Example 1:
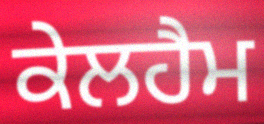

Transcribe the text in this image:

ਕੇਲਹੈਮ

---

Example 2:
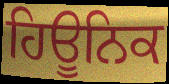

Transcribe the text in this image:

ਹਿਊਨਿਕ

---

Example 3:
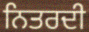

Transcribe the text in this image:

ਨਿਤਰਦੀ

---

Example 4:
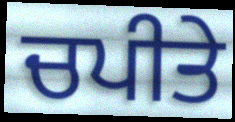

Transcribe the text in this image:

ਚਪੀਤੇ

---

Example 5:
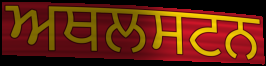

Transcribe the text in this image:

ਅਥਲਸਟਨ